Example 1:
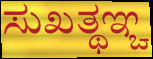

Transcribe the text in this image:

ಸುಖತ್ಥಞ್ಚ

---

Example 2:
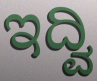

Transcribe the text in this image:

ಇದ್ವಿ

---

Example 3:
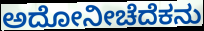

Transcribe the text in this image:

ಅದೋನೀಚೆದೆಕನು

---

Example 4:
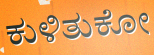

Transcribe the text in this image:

ಕುಳಿತುಕೋ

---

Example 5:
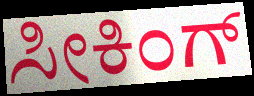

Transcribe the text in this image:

ಸೀಕಿಂಗ್